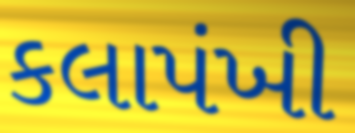
કલાપંખી